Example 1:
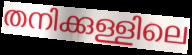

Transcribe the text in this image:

തനിക്കുള്ളിലെ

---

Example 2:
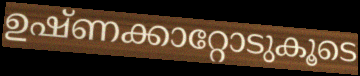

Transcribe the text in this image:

ഉഷ്ണക്കാറ്റോടുകൂടെ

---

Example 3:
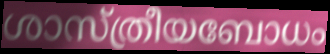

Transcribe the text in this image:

ശാസ്ത്രീയബോധം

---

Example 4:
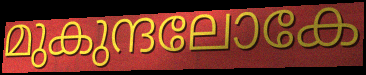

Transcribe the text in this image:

മുകുന്ദലോകേ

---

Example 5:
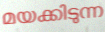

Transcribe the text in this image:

മയക്കിടുന്ന